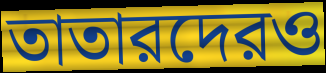
তাতারদেরও